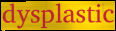
dysplastic